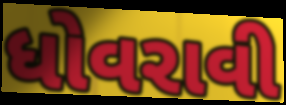
ધોવરાવી